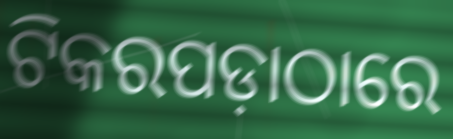
ଟିକରପଡ଼ାଠାରେ